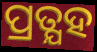
ପ୍ରତ୍ଯହ